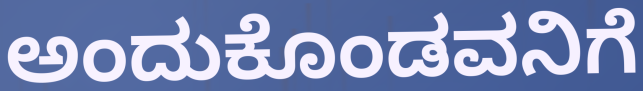
ಅಂದುಕೊಂಡವನಿಗೆ